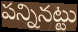
పన్నినట్టు